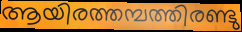
ആയിരത്തമ്പത്തിരണ്ടു